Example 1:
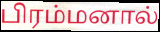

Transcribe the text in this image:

பிரம்மனால்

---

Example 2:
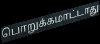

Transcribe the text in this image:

பொறுக்கமாட்டாது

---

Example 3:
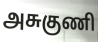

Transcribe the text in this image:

அசுகுணி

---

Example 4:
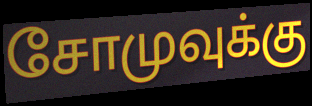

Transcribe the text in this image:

சோமுவுக்கு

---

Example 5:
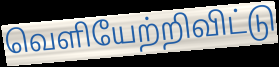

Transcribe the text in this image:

வெளியேற்றிவிட்டு